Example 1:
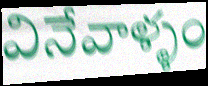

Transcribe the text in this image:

వినేవాళ్ళం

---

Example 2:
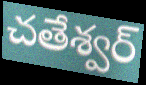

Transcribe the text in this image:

చతేశ్వర్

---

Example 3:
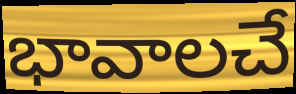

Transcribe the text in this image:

భావాలచే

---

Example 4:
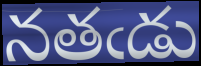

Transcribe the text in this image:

నతఁడు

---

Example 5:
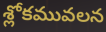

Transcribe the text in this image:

శ్లోకమువలన